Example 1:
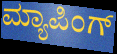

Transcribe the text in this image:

ಮ್ಯಾಪಿಂಗ್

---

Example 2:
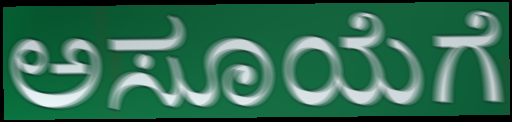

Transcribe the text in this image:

ಅಸೂಯೆಗೆ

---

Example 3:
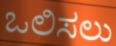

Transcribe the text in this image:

ಒಲಿಸಲು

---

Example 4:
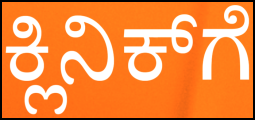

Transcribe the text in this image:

ಕ್ಲಿನಿಕ್‍ಗೆ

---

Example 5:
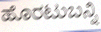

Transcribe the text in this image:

ಹೊರಟುಬನ್ನಿ